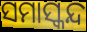
ସମାସ୍କନ୍ଦ